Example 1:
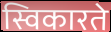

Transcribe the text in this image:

स्विकारते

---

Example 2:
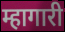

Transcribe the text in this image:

म्हागारी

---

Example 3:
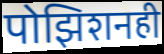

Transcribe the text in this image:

पोझिशनही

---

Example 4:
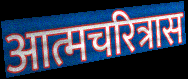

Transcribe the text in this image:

आत्मचरित्रास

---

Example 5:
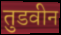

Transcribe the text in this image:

तुडवीन